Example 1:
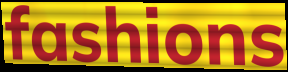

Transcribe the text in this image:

fashions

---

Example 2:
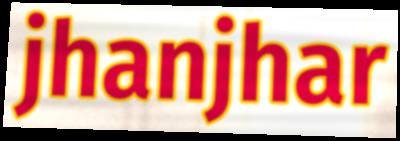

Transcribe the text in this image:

jhanjhar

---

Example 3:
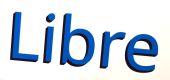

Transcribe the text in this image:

Libre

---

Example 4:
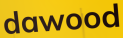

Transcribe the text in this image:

dawood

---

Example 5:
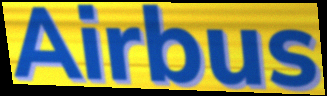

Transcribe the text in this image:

Airbus